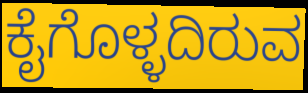
ಕೈಗೊಳ್ಳದಿರುವ